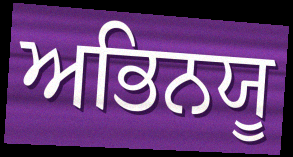
ਅਭਿਨਯੂ